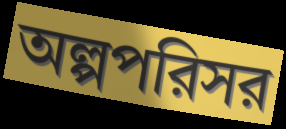
অল্পপরিসর